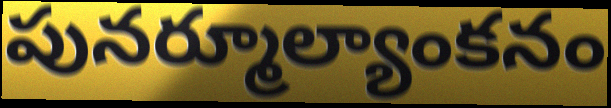
పునర్మూల్యాంకనం